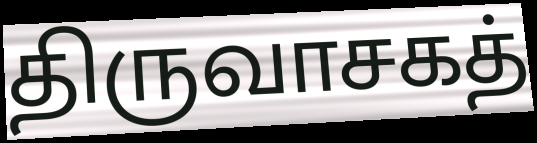
திருவாசகத்